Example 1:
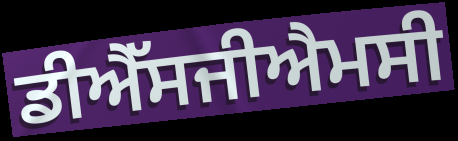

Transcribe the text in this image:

ਡੀਐੱਸਜੀਐਮਸੀ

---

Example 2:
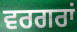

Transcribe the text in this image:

ਵਰਗਰਾਂ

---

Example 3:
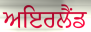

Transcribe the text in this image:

ਅਇਰਲੈਂਡ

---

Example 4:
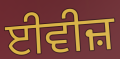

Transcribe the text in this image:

ਈਵੀਜ਼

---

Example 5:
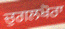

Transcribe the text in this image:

ਚੁਗਲਖੋਰਾ